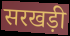
सरखड़ी